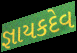
જ્ઞાયકદેવ